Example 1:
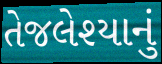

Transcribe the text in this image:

તેજલેશ્યાનું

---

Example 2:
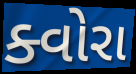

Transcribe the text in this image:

ક્વોરા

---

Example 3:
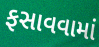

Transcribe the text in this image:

ફસાવવામાં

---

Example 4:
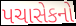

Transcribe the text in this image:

પચાસેકનો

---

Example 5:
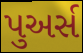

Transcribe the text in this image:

પુઅર્સ